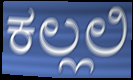
ಕಲ್ಲಲಿ